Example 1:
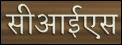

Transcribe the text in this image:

सीआईएस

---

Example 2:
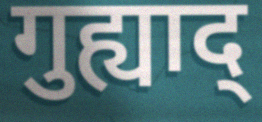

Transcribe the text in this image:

गुह्याद्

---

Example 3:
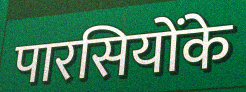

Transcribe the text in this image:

पारसियोंके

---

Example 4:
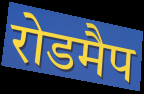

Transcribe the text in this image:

रोडमैप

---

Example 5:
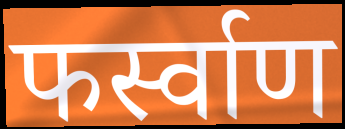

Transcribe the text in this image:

फर्स्वाण